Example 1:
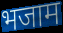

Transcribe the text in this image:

भजाम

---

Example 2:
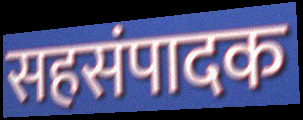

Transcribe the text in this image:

सहसंपादक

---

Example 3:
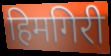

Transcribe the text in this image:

हिमगिरी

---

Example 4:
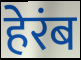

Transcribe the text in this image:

हेरंब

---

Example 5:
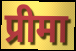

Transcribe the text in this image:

प्रीमा